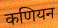
कणियन